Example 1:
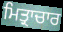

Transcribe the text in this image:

ਮਿਤ੍ਰਾਚਾਰ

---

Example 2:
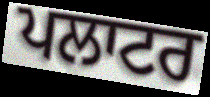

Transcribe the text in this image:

ਪਲਾਟਰ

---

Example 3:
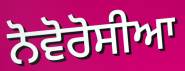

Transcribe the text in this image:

ਨੋਵੋਰੋਸੀਆ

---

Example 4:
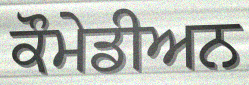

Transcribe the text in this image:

ਕੌਮੇਡੀਅਨ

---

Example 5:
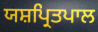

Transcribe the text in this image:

ਯਸ਼ਪ੍ਰਿਤਪਾਲ